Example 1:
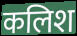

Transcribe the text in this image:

कलिश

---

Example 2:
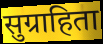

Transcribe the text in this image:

सुग्राहिता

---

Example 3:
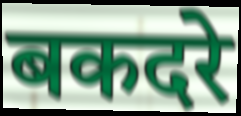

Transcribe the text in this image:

बकदरे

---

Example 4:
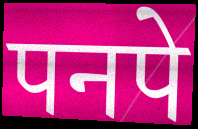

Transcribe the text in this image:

पनपे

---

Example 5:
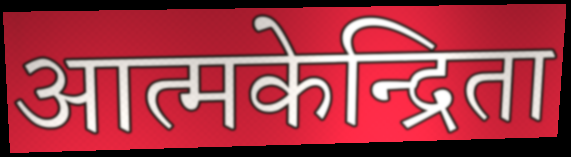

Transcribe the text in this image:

आत्मकेन्द्रिता